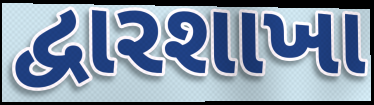
દ્વારશાખા